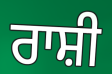
ਰਾਸ਼ੀ